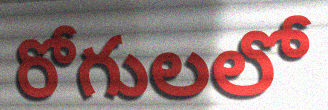
రోగులలో